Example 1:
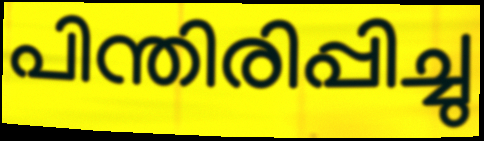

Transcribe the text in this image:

പിന്തിരിപ്പിച്ചു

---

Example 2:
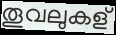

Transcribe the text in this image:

തൂവലുകള്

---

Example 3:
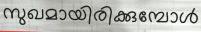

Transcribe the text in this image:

സുഖമായിരിക്കുമ്പോൾ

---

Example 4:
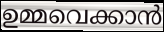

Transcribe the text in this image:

ഉമ്മവെക്കാൻ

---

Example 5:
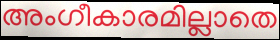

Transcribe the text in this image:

അംഗീകാരമില്ലാതെ